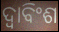
ଦ୍ଵାବିଂଶ